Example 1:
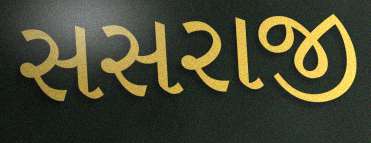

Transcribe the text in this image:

સસરાજી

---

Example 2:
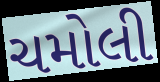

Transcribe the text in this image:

ચમોલી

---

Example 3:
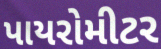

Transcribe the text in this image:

પાયરોમીટર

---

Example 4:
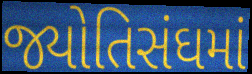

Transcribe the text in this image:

જ્યોતિસંઘમાં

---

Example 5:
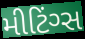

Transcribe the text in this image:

મીટિંગ્સ